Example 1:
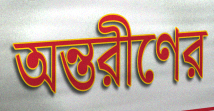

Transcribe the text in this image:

অন্তরীণের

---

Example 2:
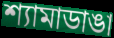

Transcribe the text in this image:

শ্যামাডাঙা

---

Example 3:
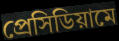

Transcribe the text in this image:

প্রেসিডিয়ামে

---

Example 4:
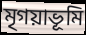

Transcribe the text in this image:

মৃগয়াভূমি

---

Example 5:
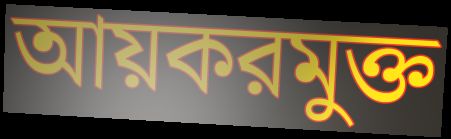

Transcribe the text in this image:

আয়করমুক্ত